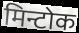
मिन्टोक